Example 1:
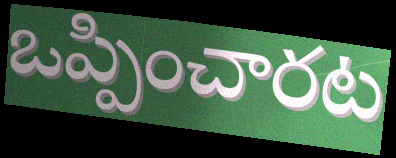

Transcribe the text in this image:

ఒప్పించారట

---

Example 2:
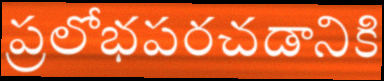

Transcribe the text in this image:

ప్రలోభపరచడానికి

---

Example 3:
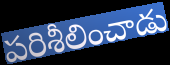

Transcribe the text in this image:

పరిశీలించాడు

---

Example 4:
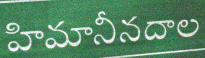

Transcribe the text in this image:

హిమానీనదాల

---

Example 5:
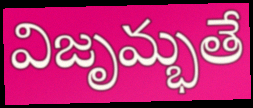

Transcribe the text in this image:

విజృమ్భతే